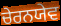
ਚੇਰਨਯੇਵ